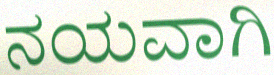
ನಯವಾಗಿ